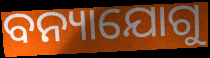
ବନ୍ୟାଯୋଗୁ